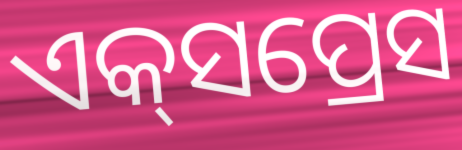
ଏକ୍‌ସପ୍ରେସ